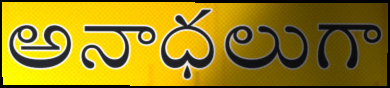
అనాధలుగా